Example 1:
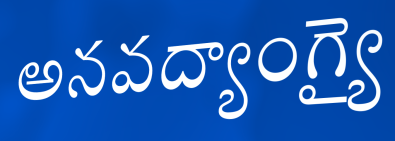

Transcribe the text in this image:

అనవద్యాంగ్యై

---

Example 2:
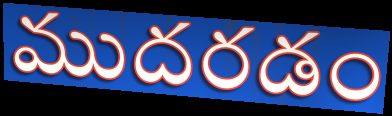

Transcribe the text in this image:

ముదరడం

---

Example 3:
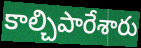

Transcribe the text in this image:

కాల్చిపారేశారు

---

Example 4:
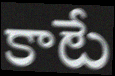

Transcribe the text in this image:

కాటే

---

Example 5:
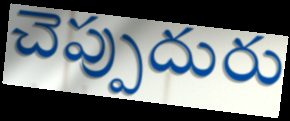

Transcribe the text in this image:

చెప్పుదురు